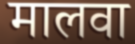
मालवा